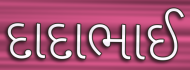
દાદાભાઈ